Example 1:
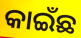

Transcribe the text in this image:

କାଇଁଛ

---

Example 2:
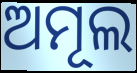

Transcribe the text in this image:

ଅମୂଲ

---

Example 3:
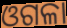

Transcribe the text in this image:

ଓଗଳା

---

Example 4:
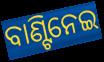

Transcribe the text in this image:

ବାଣ୍ଟିନେଇ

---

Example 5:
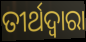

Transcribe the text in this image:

ତୀର୍ଥଦ୍ବାରା